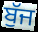
ਬੁੱਜ